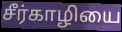
சீர்காழியை